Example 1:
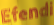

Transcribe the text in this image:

Efendi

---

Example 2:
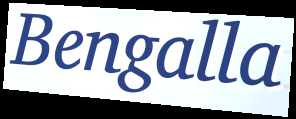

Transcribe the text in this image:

Bengalla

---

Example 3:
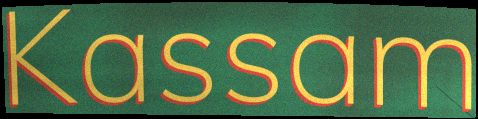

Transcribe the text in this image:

Kassam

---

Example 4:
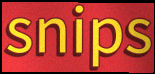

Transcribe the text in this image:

snips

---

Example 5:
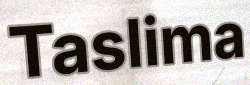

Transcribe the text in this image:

Taslima